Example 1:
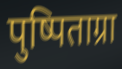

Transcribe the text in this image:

पुष्पिताग्रा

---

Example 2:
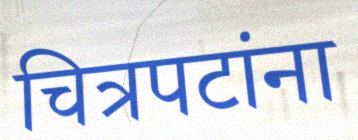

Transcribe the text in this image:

चित्रपटांना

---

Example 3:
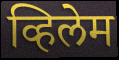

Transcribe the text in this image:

व्हिलेम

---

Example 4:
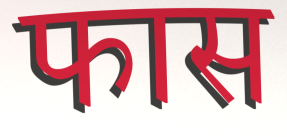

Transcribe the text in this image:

फास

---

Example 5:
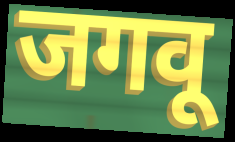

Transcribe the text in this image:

जगवू